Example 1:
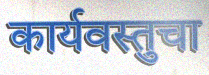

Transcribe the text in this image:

कार्यवस्तुचा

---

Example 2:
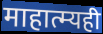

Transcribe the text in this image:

माहात्म्यही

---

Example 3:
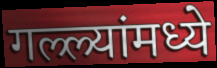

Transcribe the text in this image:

गल्ल्यांमध्ये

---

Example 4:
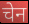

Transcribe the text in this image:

चेन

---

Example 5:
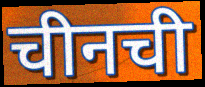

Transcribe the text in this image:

चीनची